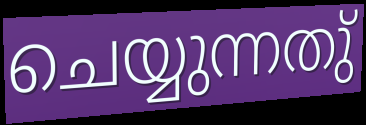
ചെയ്യുന്നതു്